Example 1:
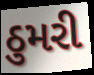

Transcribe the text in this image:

ઠુમરી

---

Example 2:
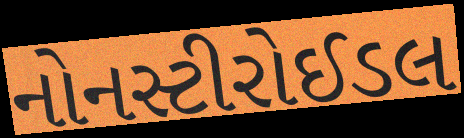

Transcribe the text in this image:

નોનસ્ટીરોઈડલ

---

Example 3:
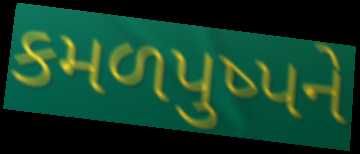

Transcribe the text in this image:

કમળપુષ્પને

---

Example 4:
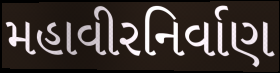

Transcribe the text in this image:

મહાવીરનિર્વાણ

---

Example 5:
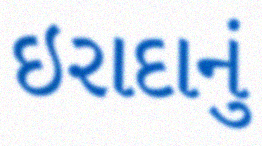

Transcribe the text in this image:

ઇરાદાનું